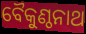
ବୈକୁଣ୍ଠନାଥ